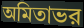
অমিতাভর